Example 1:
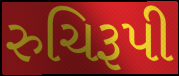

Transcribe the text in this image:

રુચિરૂપી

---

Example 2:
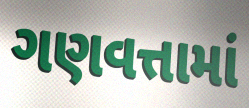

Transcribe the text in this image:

ગણવત્તામાં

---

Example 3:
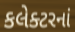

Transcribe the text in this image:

કલેક્ટરનાં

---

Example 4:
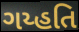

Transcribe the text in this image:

ગય્હતિ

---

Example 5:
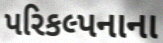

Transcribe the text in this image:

પરિકલ્પનાના